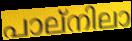
പാല്നിലാ